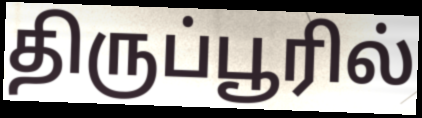
திருப்பூரில்